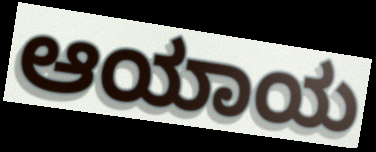
ಆಯಾಯ